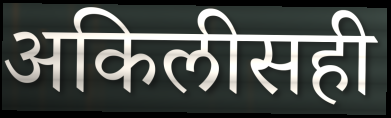
अकिलीसही